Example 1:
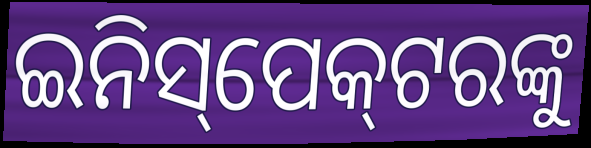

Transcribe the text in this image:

ଇନିସ୍‌ପେକ୍‌ଟରଙ୍କୁ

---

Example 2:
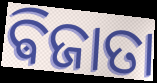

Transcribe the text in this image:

ଵିଜାତା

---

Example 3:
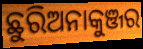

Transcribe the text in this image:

ଛୁରିଅନାକୁଞ୍ଜର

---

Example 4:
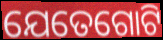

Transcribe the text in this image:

ଯେତେଗୋଟି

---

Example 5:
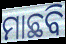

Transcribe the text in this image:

ମାଛବି